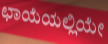
ಛಾಯೆಯಲ್ಲಿಯೇ